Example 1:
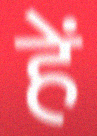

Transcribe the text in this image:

हें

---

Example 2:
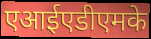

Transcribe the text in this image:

एआईएडीएमके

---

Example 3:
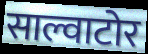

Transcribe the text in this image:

साल्वाटोर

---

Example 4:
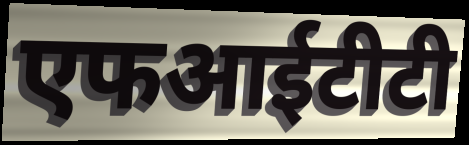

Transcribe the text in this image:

एफआईटीटी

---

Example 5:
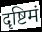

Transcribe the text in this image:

दृष्टिमं